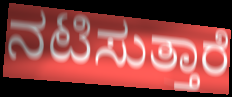
ನಟಿಸುತ್ತಾರೆ